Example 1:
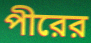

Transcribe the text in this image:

পীরের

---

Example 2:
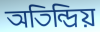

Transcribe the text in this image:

অতিন্দ্রিয়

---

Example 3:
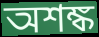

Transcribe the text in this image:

অশঙ্ক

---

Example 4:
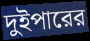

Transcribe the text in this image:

দুইপারের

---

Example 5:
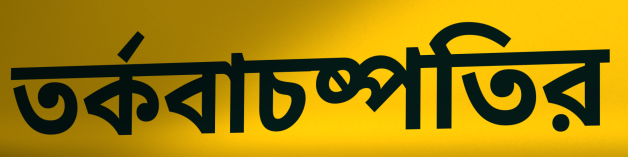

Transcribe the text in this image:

তর্কবাচষ্পতির